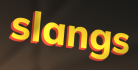
slangs